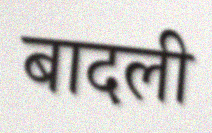
बादली